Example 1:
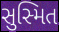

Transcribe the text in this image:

સુસ્મિત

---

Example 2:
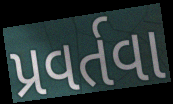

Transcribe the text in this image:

પ્રવર્તવા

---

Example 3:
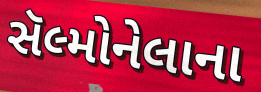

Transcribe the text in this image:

સૅલ્મોનેલાના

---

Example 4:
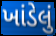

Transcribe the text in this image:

ખાંડેલું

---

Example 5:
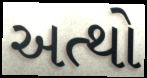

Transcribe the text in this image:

અત્થો